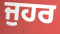
ਜੁਹਰ